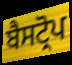
ਬੈਸਟ੍ਰੋਪ